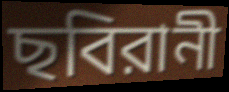
ছবিরানী